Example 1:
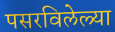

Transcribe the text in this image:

पसरविलेल्या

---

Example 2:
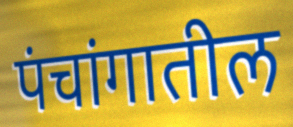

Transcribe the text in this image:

पंचांगातील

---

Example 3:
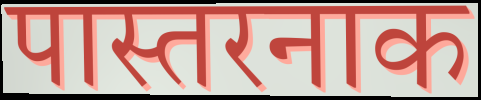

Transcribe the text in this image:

पास्तरनाक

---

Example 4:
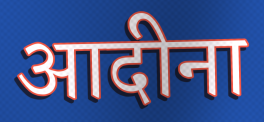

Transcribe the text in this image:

आदीना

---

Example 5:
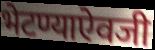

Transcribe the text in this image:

भेटण्याऐवजी